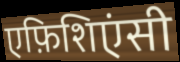
एफ़िशिएंसी